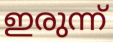
ഇരുന്ന്